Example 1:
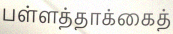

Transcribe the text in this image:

பள்ளத்தாக்கைத்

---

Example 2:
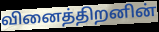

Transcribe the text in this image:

வினைத்திறனின்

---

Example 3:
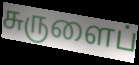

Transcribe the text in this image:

சுருளைப்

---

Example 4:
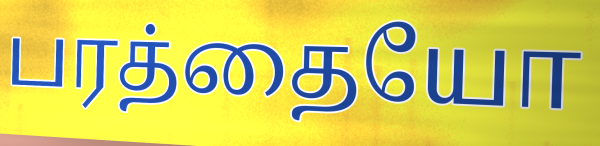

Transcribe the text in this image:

பரத்தையோ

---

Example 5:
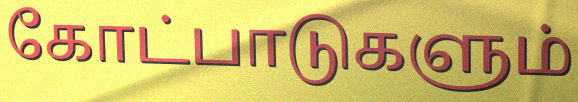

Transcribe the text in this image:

கோட்பாடுகளும்